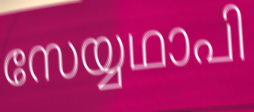
സേയ്യഥാപി